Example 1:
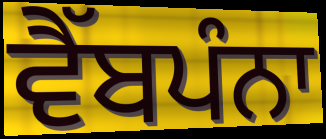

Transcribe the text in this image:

ਵੈੱਬਪੰਨਾ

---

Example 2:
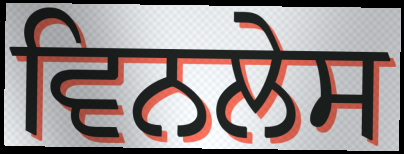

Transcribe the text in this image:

ਵਿਨਲੇਸ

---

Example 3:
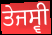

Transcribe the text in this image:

ਤੇਜਸ੍ਵੀ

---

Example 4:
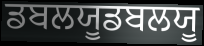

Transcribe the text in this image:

ਡਬਲਯੂਡਬਲਯੂ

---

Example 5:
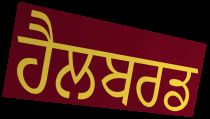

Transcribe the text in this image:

ਹੈਲਬਰਡ